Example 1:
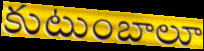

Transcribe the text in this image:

కుటుంబాలూ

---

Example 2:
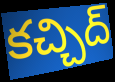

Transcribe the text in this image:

కచ్చిద్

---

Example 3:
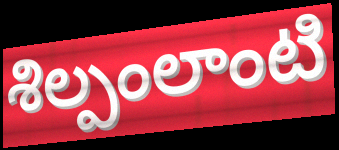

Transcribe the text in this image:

శిల్పంలాంటి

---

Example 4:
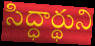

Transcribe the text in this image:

సిద్ధార్థుని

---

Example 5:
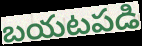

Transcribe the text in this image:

బయటపడి